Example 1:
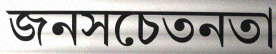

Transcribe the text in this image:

জনসচেতনতা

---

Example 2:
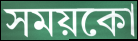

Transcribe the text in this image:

সময়কো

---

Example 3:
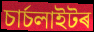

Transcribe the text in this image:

চাৰ্চলাইটৰ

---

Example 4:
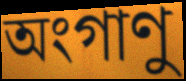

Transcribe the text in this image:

অংগাণু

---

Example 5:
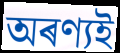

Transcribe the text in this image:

অৰণ্যই